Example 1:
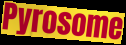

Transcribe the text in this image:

Pyrosome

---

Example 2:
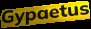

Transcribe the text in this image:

Gypaetus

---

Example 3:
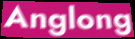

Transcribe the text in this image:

Anglong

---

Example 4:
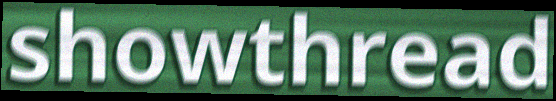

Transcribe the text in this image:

showthread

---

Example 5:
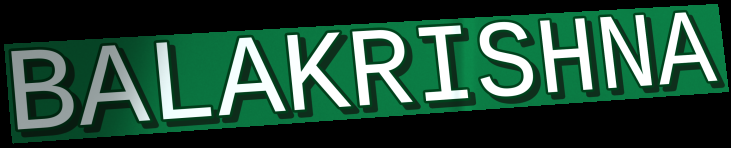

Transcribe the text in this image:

BALAKRISHNA